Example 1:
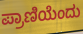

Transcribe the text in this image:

ಪ್ರಾಣಿಯೆಂದು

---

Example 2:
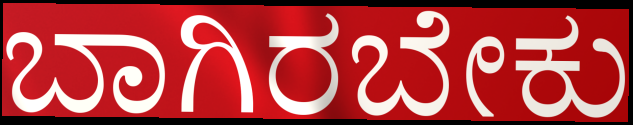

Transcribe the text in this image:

ಬಾಗಿರಬೇಕು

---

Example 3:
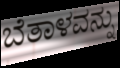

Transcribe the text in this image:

ಬೆತಾಳವನ್ನು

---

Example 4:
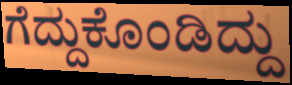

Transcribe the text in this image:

ಗೆದ್ದುಕೊಂಡಿದ್ದು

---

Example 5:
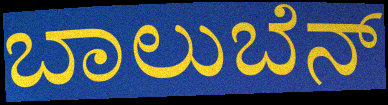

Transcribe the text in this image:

ಬಾಲುಬೆನ್